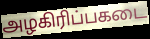
அழகிரிப்பகடை